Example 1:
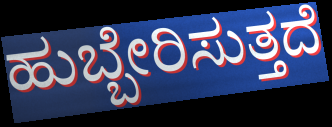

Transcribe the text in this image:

ಹುಬ್ಬೇರಿಸುತ್ತದೆ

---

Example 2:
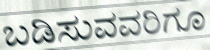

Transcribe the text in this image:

ಬಡಿಸುವವರಿಗೂ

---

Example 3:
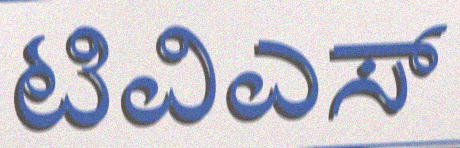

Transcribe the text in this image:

ಟಿವಿಎಸ್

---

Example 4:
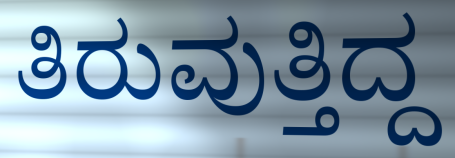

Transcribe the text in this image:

ತಿರುವುತ್ತಿದ್ದ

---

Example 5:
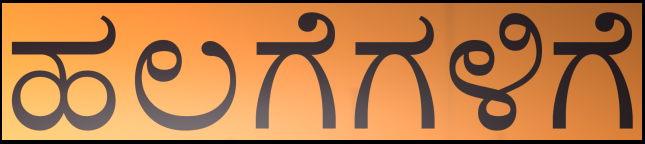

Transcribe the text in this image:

ಹಲಗೆಗಳಿಗೆ